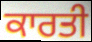
ਕਾਰਤੀ